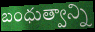
బంధుత్వాన్ని